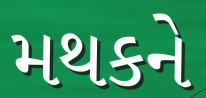
મથકને